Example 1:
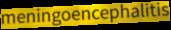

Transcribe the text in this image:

meningoencephalitis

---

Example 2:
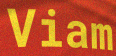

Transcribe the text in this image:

Viam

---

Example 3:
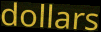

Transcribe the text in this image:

dollars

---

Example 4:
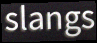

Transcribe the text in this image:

slangs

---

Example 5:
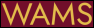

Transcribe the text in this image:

WAMS